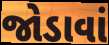
જોડાવાં